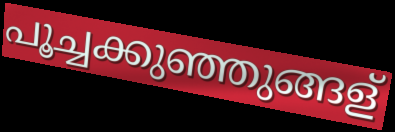
പൂച്ചക്കുഞ്ഞുങ്ങള്